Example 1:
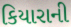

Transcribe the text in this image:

કિયારાની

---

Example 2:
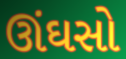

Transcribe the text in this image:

ઊંઘસો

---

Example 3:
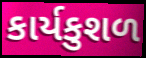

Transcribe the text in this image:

કાર્યકુશળ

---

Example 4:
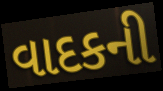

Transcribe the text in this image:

વાદકની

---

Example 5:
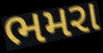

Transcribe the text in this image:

ભમરા